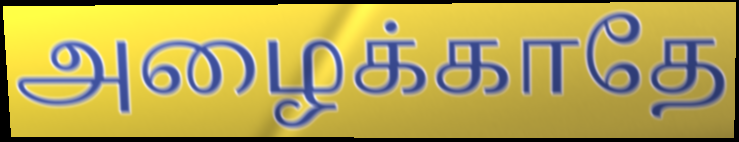
அழைக்காதே